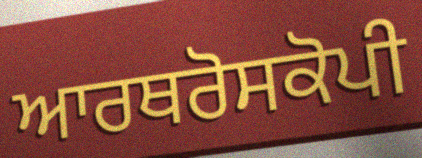
ਆਰਥਰੋਸਕੋਪੀ